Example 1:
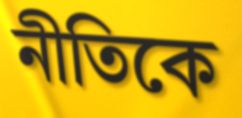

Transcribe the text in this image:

নীতিকে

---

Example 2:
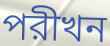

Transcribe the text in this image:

পরীখন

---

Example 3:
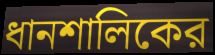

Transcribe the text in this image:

ধানশালিকের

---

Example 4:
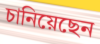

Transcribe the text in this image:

চানিয়েছেন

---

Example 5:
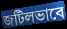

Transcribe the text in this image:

জটিলভাবে